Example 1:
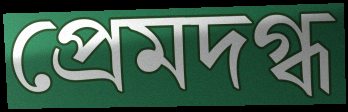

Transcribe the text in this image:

প্রেমদগ্ধ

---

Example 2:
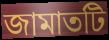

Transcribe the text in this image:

জামাতটি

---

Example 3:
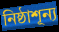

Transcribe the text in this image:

নিষ্ঠাশূন্য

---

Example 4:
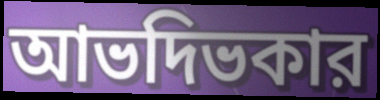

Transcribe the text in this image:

আভদিভকার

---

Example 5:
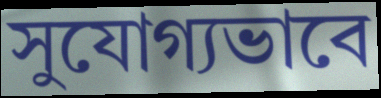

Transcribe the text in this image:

সুযোগ্যভাবে